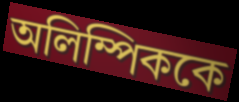
অলিম্পিককে